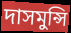
দাসমুন্সি